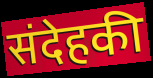
संदेहकी